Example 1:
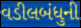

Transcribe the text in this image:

વડીલબંધુની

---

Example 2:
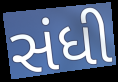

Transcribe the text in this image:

સંધી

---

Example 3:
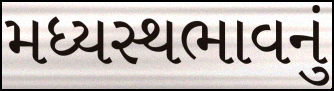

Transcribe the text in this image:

મધ્યસ્થભાવનું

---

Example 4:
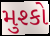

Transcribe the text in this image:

મુશ્કો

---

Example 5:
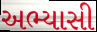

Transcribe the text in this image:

અભ્યાસી